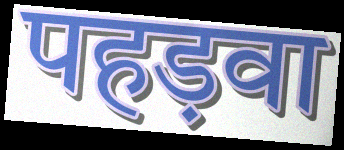
पहड़वा